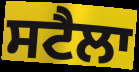
ਸਟੈਲਾ